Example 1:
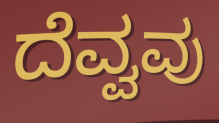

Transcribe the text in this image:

ದೆವ್ವವು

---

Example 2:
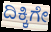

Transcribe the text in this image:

ದಿಕ್ಕಿಗೇ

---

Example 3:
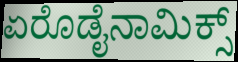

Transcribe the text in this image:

ಏರೊಡೈನಾಮಿಕ್ಸ್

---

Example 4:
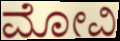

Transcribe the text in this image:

ಮೋವಿ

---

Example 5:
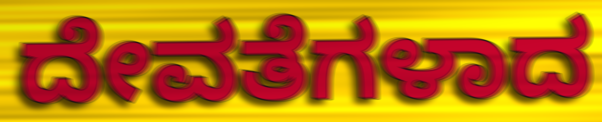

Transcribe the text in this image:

ದೇವತೆಗಳಾದ